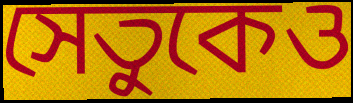
সেতুকেও